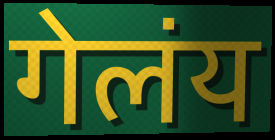
गेलंय